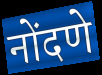
नोंदणे